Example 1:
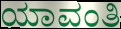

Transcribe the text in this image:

ಯಾವಂತಿ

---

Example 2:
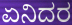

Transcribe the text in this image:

ಏನಿದರ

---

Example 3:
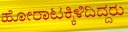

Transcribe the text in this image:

ಹೋರಾಟಕ್ಕಿಳಿದಿದ್ದರು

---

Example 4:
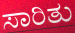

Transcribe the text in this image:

ಸಾರಿತು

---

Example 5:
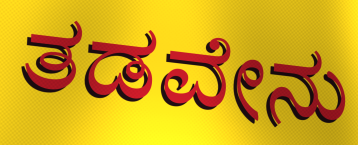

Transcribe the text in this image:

ತಡವೇನು